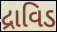
દ્રાવિડ